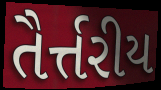
તૈર્ત્તરીય